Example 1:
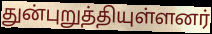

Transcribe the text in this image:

துன்புறுத்தியுள்ளனர்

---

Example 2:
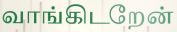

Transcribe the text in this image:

வாங்கிடறேன்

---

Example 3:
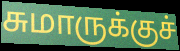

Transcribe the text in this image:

சுமாருக்குச்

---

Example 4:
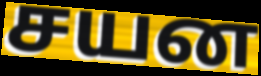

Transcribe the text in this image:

சயன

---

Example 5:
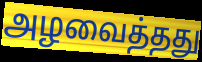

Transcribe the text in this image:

அழவைத்தது